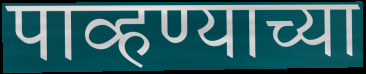
पाव्हण्याच्या